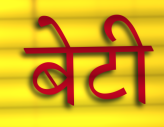
बेटी